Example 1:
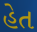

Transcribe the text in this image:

હેત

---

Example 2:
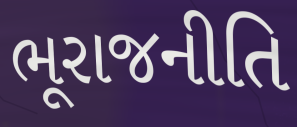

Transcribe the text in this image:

ભૂરાજનીતિ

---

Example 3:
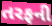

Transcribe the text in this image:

તરફની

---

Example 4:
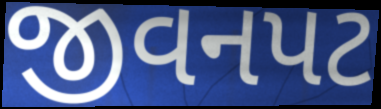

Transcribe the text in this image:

જીવનપટ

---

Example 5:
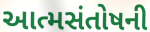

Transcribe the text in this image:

આત્મસંતોષની